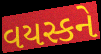
વયસ્કને